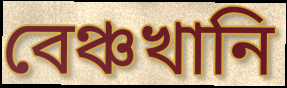
বেঞ্চখানি